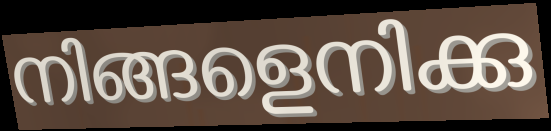
നിങ്ങളെനിക്കു